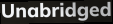
Unabridged